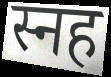
स्नह